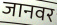
जानवर